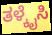
ತಳ್ಕೈಸಿ